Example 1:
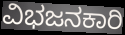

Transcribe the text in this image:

ವಿಭಜನಕಾರಿ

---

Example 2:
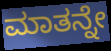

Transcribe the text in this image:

ಮಾತನ್ನೇ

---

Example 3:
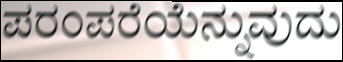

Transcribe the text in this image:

ಪರಂಪರೆಯೆನ್ನುವುದು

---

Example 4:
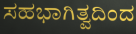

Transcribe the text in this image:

ಸಹಭಾಗಿತ್ವದಿಂದ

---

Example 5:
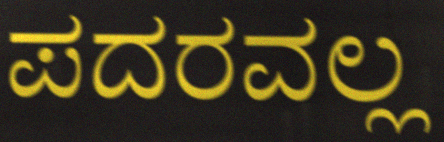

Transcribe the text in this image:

ಪದರವಲ್ಲ